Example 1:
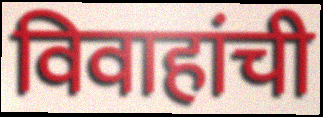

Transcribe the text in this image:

विवाहांची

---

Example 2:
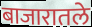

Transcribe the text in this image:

बाजारातले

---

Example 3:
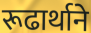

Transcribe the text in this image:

रूढार्थाने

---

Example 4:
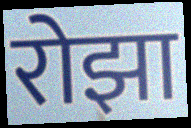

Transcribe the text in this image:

रोझा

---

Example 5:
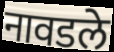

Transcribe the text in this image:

नावडले